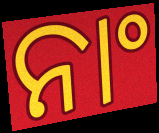
ନାଂ